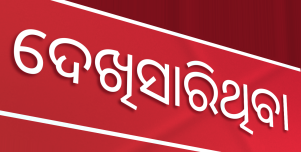
ଦେଖିସାରିଥିବା